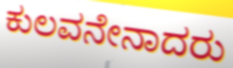
ಕುಲವನೇನಾದರು